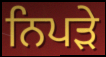
ਨਿਪੜੇ